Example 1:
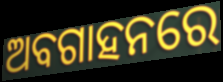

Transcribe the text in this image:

ଅବଗାହନରେ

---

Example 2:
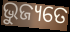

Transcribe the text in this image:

ଭୁଜ୍ୟତେ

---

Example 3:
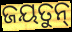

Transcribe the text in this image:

ଜୟତୁନ୍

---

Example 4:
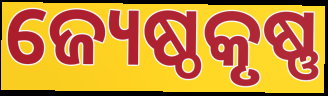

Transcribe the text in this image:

ଜ୍ୟେଷ୍ଠକୃଷ୍ଣ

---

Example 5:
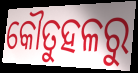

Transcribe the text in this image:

କୌତୁହଳରୁ